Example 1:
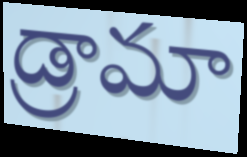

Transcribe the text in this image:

డ్రామా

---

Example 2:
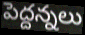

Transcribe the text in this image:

పెద్దన్నలు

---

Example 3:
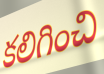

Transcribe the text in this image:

కలిగించి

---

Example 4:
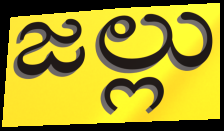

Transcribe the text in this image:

జల్లు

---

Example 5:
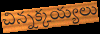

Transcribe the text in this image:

చిన్నక్కయ్యలు